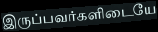
இருப்பவர்களிடையே